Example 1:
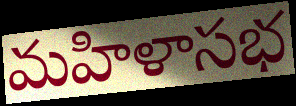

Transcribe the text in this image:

మహిళాసభ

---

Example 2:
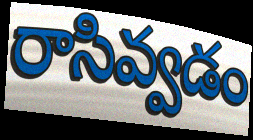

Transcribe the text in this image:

రాసివ్వడం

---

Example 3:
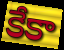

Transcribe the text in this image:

కేకా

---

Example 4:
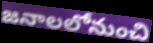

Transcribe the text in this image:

జనాలలోనుంచి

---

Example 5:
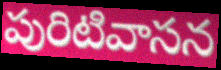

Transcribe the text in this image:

పురిటివాసన